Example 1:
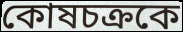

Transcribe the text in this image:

কোষচক্রকে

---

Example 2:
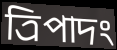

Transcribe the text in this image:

ত্রিপাদং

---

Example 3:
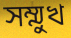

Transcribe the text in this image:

সম্মুখ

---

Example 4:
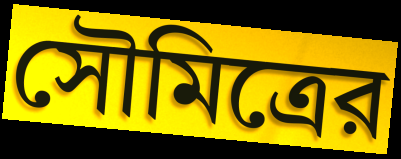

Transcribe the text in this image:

সৌমিত্রের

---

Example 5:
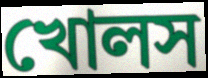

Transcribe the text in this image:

খোলস